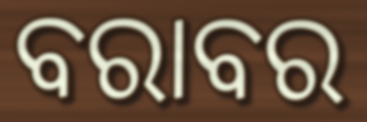
ବରାବର